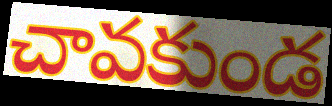
చావకుండ